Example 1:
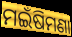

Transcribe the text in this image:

ମଇଁଷିମଣା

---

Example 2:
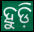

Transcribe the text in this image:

ହୁଡ଼ି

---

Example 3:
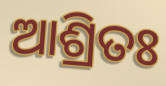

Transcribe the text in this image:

ଆଶ୍ରିତଃ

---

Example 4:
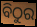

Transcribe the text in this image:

ବିଠୁର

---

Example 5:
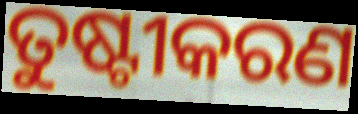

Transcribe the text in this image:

ତୁଷ୍ଟୀକରଣ